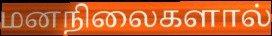
மனநிலைகளால்